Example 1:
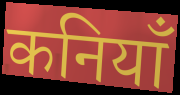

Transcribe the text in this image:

कनियाँ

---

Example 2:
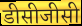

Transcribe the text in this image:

डीसीजीसी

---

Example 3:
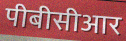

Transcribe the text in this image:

पीबीसीआर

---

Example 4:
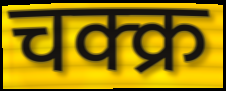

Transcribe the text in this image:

चक्क्र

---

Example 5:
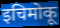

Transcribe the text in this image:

इचिमोकू